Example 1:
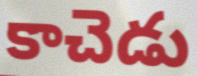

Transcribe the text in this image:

కాచెడు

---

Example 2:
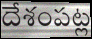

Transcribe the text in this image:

దేశంపట్ల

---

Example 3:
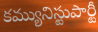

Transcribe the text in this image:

కమ్యునిస్టుపార్టీ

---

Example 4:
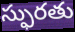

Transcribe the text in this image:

స్ఫురతు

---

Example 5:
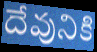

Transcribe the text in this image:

దేవునికి